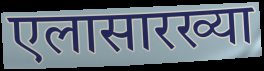
एलासारख्या